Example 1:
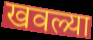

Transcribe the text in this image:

खवल्या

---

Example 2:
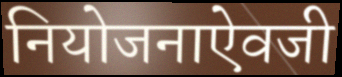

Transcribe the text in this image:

नियोजनाऐवजी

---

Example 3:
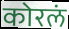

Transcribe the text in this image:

कोरलं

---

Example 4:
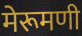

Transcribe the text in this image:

मेरूमणी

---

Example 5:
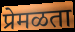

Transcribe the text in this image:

प्रेमळता